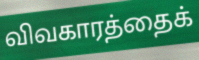
விவகாரத்தைக்